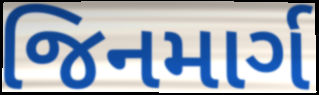
જિનમાર્ગ